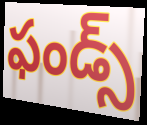
ఫండ్స్